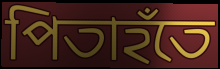
পিতাহঁতে